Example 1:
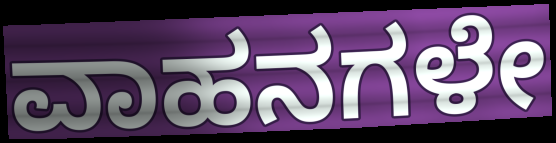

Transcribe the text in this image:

ವಾಹನಗಳೇ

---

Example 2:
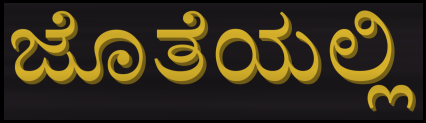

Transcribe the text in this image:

ಜೊತೆಯಲ್ಲಿ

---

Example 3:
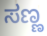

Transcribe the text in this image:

ಸಣ್ಣ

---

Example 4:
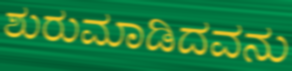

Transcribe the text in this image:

ಶುರುಮಾಡಿದವನು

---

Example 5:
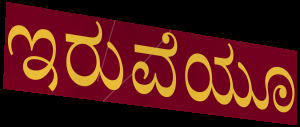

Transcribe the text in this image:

ಇರುವೆಯೂ